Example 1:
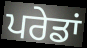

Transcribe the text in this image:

ਪਰੇਡਾਂ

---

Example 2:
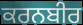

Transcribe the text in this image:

ਕਰਨਬੀਰ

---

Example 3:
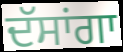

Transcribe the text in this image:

ਦੱਸਾਂਗਾ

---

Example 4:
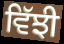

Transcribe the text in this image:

ਵਿੱਝੀ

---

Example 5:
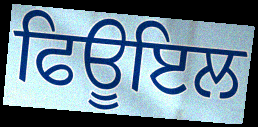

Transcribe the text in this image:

ਫਿਊਇਲ